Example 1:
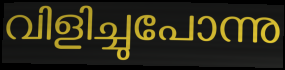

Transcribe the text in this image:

വിളിച്ചുപോന്നു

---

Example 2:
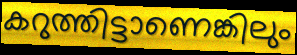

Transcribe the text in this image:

കറുത്തിട്ടാണെങ്കിലും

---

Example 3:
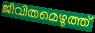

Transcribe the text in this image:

ജീവിതമെഴുത്ത്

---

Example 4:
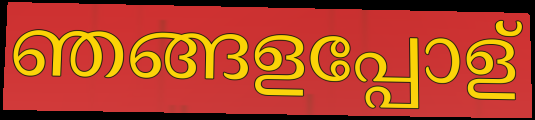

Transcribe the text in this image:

ഞങ്ങളപ്പോള്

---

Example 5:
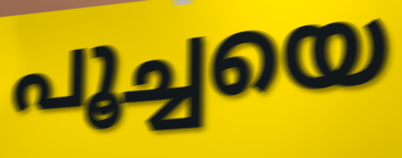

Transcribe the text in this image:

പൂച്ചയെ